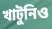
খাটুনিও